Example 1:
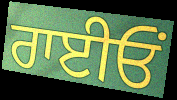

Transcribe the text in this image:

ਰਾਈਓਂ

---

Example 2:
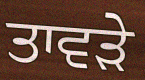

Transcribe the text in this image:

ਤਾਵੜੇ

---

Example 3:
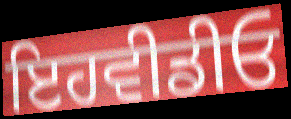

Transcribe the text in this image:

ਇਹਵੀਡੀਓ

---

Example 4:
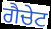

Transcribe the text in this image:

ਗੈਚੇਟ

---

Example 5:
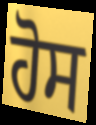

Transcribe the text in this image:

ਹੋਸ